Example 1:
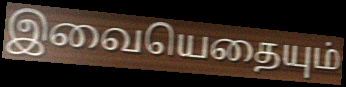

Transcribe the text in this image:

இவையெதையும்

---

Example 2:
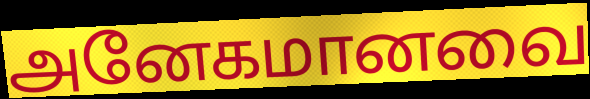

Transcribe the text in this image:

அனேகமானவை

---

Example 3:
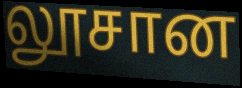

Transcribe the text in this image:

லூசான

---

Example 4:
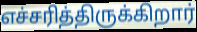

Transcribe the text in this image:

எச்சரித்திருக்கிறார்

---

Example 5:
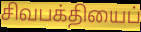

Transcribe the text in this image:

சிவபக்தியைப்